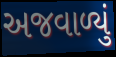
અજવાળ્યું